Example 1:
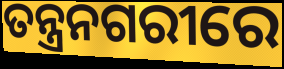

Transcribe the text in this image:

ତନ୍ତ୍ରନଗରୀରେ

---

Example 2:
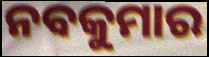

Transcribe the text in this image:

ନବକୁମାର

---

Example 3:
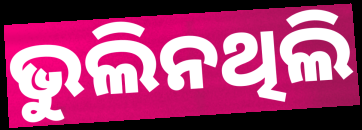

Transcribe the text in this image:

ଭୁଲିନଥିଲି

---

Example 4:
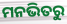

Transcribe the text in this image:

ମନଭିତରୁ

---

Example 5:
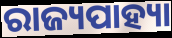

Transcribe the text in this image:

ରାଜ୍ୟପାହ୍ୟା